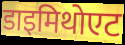
डाइमिथोएट